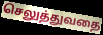
செலுத்துவதை